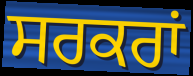
ਸਰਕਰਾਂ